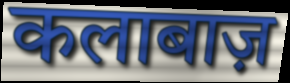
कलाबाज़